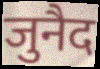
जुनैद